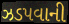
ઝડપવાની